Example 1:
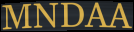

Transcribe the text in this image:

MNDAA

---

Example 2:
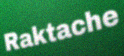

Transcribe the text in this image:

Raktache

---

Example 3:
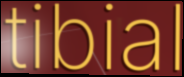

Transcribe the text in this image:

tibial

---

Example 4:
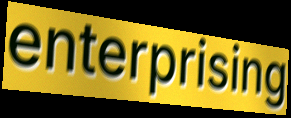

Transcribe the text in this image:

enterprising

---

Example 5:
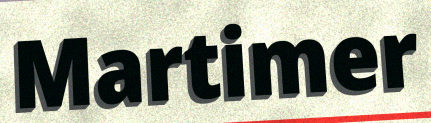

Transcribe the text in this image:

Martimer